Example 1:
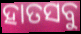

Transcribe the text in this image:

ହାତସବୁ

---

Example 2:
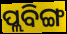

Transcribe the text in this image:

ପ୍ଲବିଙ୍ଗ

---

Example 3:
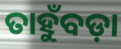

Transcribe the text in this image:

ତାହୁଁବଡ଼ା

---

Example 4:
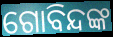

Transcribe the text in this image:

ଗୋବିନ୍ଦଙ୍କ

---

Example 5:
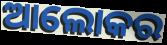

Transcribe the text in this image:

ଆଲୋକର